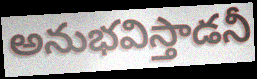
అనుభవిస్తాడనీ